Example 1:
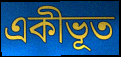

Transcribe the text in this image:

একীভূত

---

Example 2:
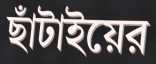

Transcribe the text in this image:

ছাঁটাইয়ের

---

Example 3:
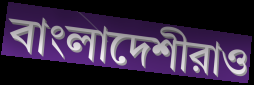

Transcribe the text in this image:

বাংলাদেশীরাও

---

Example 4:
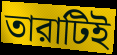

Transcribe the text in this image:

তারাটিই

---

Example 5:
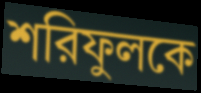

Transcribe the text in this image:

শরিফুলকে